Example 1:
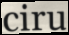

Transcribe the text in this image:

ciru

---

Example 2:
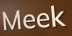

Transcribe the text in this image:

Meek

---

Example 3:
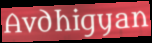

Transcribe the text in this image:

Avdhigyan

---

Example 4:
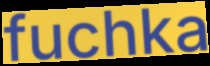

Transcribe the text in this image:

fuchka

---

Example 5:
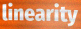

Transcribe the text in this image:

linearity